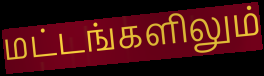
மட்டங்களிலும்